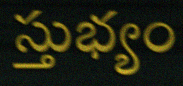
స్తుభ్యం